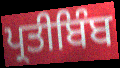
ਪ੍ਰਤੀਬਿੰਬ